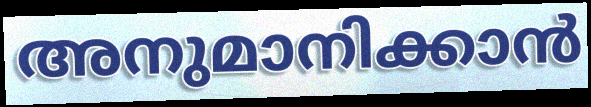
അനുമാനിക്കാൻ